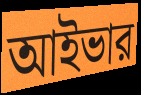
আইভার